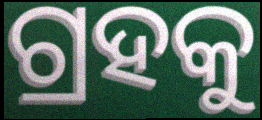
ଗ୍ରହକୁ